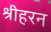
श्रीहरन